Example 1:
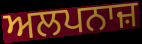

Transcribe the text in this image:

ਅਲਪਨਾਜ਼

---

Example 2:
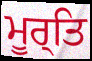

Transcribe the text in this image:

ਮੂਰ੍ਤਿ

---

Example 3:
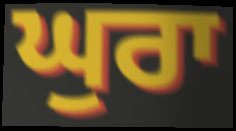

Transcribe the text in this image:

ਘੁਰਾ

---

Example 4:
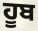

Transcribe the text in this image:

ਹੂਬ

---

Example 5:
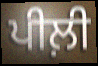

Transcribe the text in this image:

ਪੀਲ਼ੀ